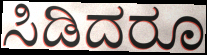
ಸಿಡಿದರೂ